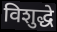
विशुद्धे